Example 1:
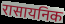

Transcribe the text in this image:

रासायनिक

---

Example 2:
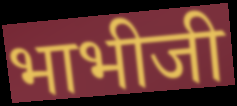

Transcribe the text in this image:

भाभीजी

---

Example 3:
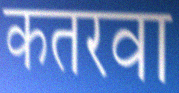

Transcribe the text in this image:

कतरवा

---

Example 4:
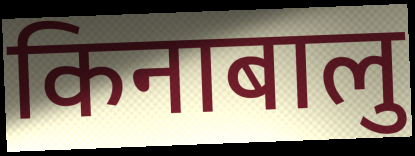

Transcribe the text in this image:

किनाबालु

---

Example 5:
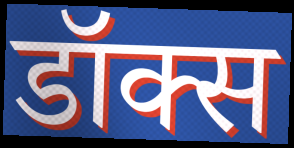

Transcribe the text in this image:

डॉक्स